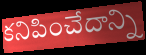
కనిపించేదాన్ని